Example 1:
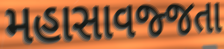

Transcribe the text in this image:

મહાસાવજ્જતા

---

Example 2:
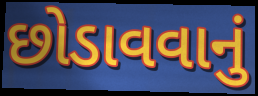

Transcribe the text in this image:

છોડાવવાનું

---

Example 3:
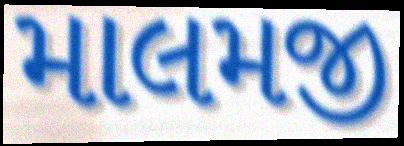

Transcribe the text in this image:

માલમજી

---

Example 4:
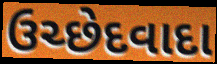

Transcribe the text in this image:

ઉચ્છેદવાદા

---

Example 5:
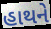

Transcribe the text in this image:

હાથને